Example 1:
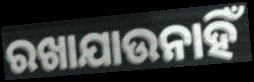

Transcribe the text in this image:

ରଖାଯାଉନାହିଁ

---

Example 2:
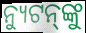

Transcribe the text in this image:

ନ୍ୟୁଟନ୍‌ଙ୍କୁ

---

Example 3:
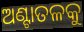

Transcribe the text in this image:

ଅଣ୍ଟାତଳକୁ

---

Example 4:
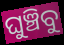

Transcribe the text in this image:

ଘୁଞ୍ଚିବୁ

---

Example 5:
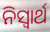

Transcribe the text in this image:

ନିସ୍ୱାର୍ଥ